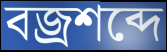
বজ্রশব্দে